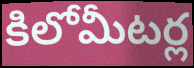
కిలోమీటర్ల